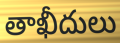
తాఖీదులు